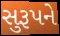
સુરૂપને